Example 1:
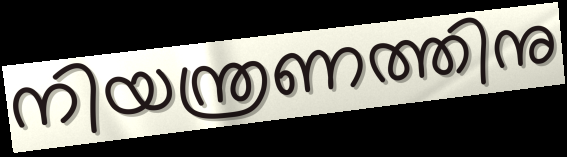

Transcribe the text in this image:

നിയന്ത്രണത്തിനു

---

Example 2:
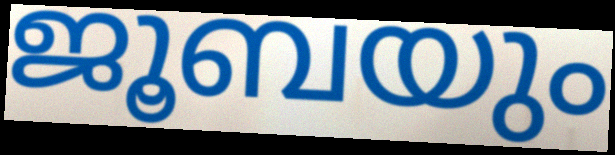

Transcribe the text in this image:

ജൂബയും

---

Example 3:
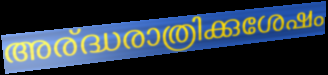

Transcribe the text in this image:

അര്ദ്ധരാത്രിക്കുശേഷം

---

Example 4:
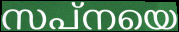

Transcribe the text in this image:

സപ്‌നയെ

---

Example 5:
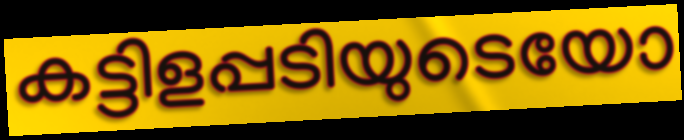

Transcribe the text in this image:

കട്ടിളപ്പടിയുടെയോ